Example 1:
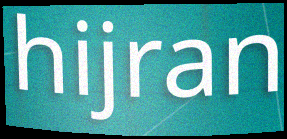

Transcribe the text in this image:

hijran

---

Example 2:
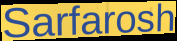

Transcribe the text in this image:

Sarfarosh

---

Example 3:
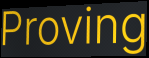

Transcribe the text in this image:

Proving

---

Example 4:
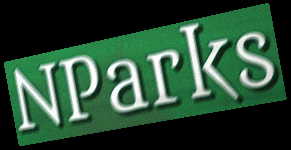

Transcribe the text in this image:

NParks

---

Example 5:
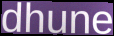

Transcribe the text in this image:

dhune